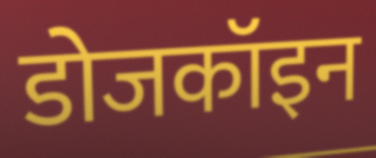
डोजकॉइन